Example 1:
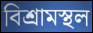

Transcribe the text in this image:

বিশ্রামস্থল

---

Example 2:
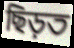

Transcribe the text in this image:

ছিড়ত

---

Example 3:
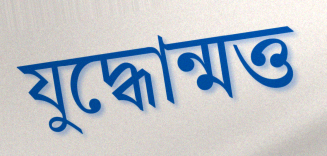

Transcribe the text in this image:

যুদ্ধোন্মত্ত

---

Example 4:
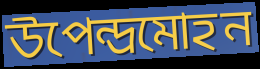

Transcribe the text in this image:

উপেন্দ্রমোহন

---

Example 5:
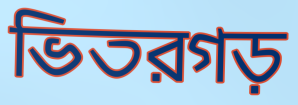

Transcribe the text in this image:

ভিতরগড়